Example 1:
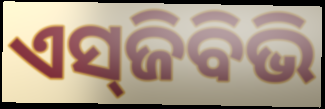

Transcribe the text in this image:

ଏସ୍‌ଜିବିଭି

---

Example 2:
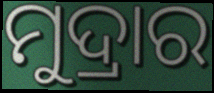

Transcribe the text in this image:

ମୁଦ୍ରାର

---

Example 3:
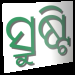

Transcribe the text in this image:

ସ୍ରୁଷ୍ଟି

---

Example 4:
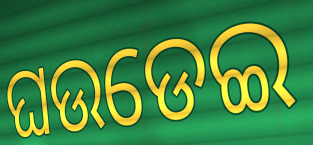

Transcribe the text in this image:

ଘଉଡେଇ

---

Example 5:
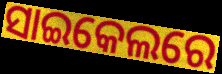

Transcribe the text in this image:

ସାଇକେଲରେ